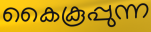
കൈകൂപ്പുന്ന